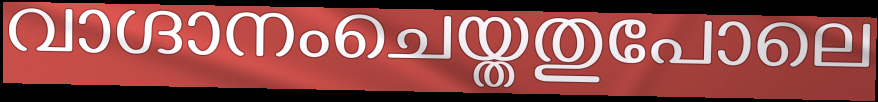
വാഗ്ദാനംചെയ്തതുപോലെ